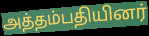
அத்தம்பதியினர்